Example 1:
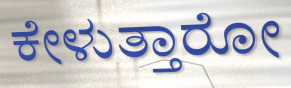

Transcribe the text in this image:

ಕೇಳುತ್ತಾರೋ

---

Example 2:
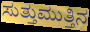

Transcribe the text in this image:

ಸುತ್ತುಮುತ್ತಿನ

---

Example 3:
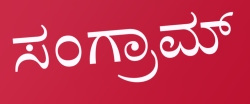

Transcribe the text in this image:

ಸಂಗ್ರಾಮ್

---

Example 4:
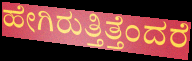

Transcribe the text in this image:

ಹೇಗಿರುತ್ತಿತ್ತೆಂದರೆ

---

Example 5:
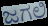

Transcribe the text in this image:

ಜಗಲಿ